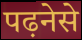
पढ़नेसे